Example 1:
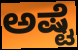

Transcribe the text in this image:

ಅಷ್ಟೆ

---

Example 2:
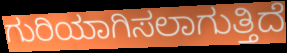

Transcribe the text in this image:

ಗುರಿಯಾಗಿಸಲಾಗುತ್ತಿದೆ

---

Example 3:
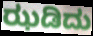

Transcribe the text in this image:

ಝಡಿದು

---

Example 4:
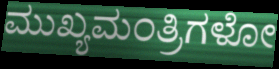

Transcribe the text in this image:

ಮುಖ್ಯಮಂತ್ರಿಗಳೋ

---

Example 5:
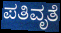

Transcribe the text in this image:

ಪತಿವೃತೆ